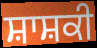
ਸ਼ਾਸ਼ਕੀ